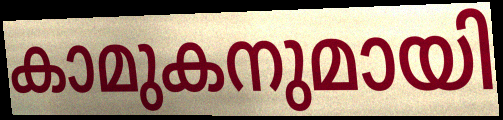
കാമുകനുമായി